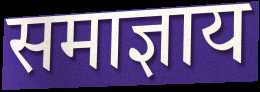
समाज्ञाय